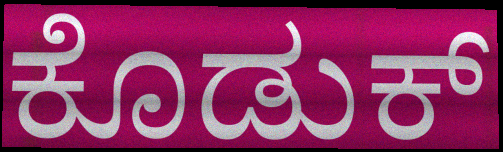
ಕೊಡುಕ್